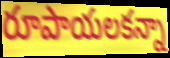
రూపాయలకన్నా